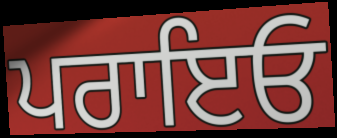
ਪਰਾਇਓ